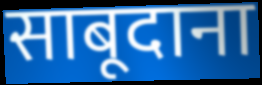
साबूदाना